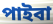
পাইবা